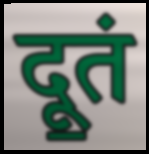
दू॒तं